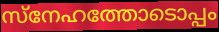
സ്നേഹത്തോടൊപ്പം